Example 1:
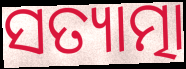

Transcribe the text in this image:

ସତ୍ୟାତ୍ମା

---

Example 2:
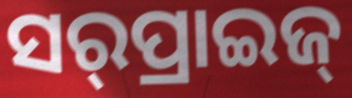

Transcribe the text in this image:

ସର୍‌ପ୍ରାଇଜ୍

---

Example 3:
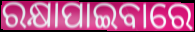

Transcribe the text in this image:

ରକ୍ଷାପାଇବାରେ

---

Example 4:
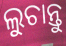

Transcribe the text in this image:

ଲୁଚାନ୍ତୁ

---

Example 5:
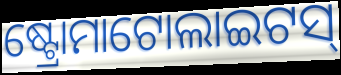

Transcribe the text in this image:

ଷ୍ଟ୍ରୋମାଟୋଲାଇଟସ୍